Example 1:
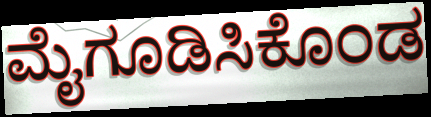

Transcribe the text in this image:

ಮೈಗೂಡಿಸಿಕೊಂಡ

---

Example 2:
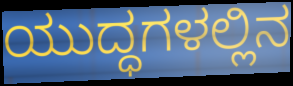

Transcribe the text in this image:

ಯುದ್ಧಗಳಲ್ಲಿನ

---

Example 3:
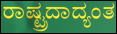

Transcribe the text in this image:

ರಾಷ್ಟ್ರದಾದ್ಯಂತ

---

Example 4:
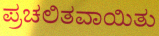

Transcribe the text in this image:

ಪ್ರಚಲಿತವಾಯಿತು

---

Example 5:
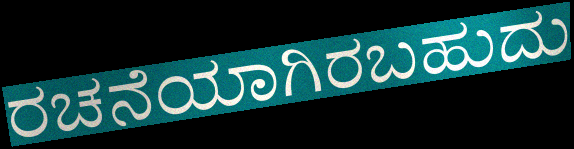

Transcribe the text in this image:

ರಚನೆಯಾಗಿರಬಹುದು